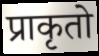
प्राकृतो